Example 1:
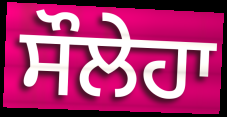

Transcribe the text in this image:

ਸੌਲੇਹਾ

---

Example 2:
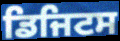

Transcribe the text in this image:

ਡਿਜਿਟਸ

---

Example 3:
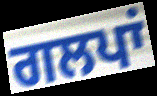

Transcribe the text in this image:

ਗਲਪਾਂ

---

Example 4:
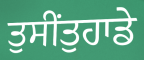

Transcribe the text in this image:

ਤੁਸੀਂਤੁਹਾਡੇ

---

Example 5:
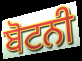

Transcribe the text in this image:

ਬੋਟਨੀ